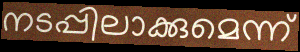
നടപ്പിലാക്കുമെന്ന്